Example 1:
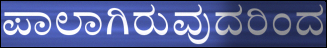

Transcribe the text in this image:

ಪಾಲಾಗಿರುವುದರಿಂದ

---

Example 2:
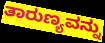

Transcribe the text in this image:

ತಾರುಣ್ಯವನ್ನು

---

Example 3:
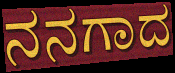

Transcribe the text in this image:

ನನಗಾದ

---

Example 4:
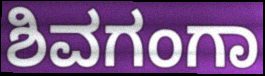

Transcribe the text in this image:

ಶಿವಗಂಗಾ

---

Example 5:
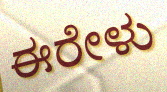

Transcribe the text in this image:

ಈರೇಳು